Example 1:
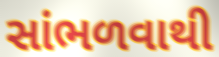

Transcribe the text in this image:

સાંભળવાથી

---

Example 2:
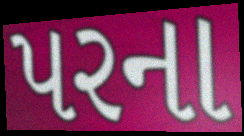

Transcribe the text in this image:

પરના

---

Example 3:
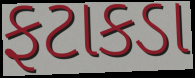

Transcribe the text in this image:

ફટાકડા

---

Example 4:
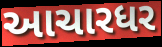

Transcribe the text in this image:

આચારધર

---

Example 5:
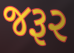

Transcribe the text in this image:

જરૂર